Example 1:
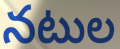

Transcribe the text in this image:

నటుల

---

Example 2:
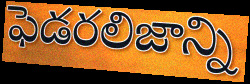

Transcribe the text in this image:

ఫెడరలిజాన్ని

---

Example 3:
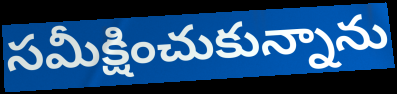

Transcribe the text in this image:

సమీక్షించుకున్నాను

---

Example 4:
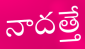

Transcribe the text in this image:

నాదత్తే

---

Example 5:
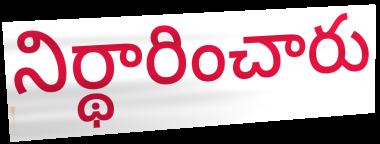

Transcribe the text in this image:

నిర్థారించారు